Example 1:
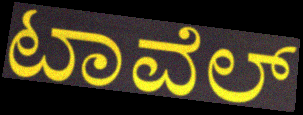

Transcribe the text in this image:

ಟಾವೆಲ್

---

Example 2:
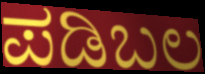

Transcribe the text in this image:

ಪಡಿಬಲ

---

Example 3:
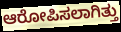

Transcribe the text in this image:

ಆರೋಪಿಸಲಾಗಿತ್ತು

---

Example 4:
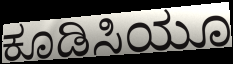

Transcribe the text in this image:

ಕೂಡಿಸಿಯೂ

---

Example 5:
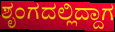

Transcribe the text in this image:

ಶೃಂಗದಲ್ಲಿದ್ದಾಗ